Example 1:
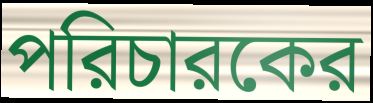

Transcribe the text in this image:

পরিচারকের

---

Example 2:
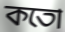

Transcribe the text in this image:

কতো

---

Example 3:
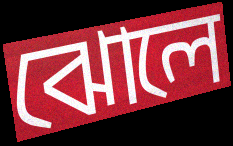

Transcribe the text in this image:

ঝোলে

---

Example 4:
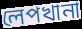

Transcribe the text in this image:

লেপখানা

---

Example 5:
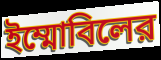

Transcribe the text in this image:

ইম্মোবিলের